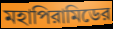
মহাপিরামিডের